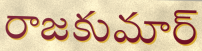
రాజకుమార్